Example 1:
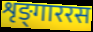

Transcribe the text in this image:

शृङ्गाररस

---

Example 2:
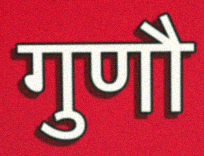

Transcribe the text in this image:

गुणौ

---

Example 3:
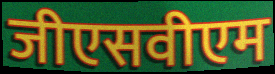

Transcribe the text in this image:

जीएसवीएम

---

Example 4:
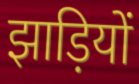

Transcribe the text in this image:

झाड़ियों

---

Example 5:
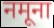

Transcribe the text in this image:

नमूना